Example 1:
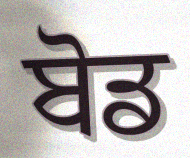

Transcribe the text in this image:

ਬੋਡ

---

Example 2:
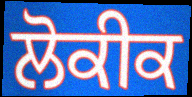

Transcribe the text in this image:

ਲੋਕੀਕ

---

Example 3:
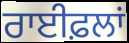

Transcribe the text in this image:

ਰਾਈਫ਼ਲਾਂ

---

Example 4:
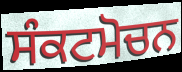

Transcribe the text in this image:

ਸੰਕਟਮੋਚਨ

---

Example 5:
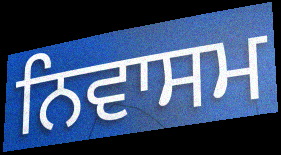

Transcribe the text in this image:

ਨਿਵਾਸਮ